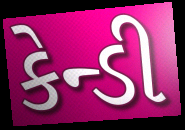
કેન્ડી